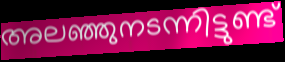
അലഞ്ഞുനടന്നിട്ടുണ്ട്